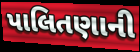
પાલિતણાની